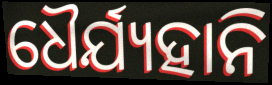
ଧୈର୍ଯ୍ୟହାନି